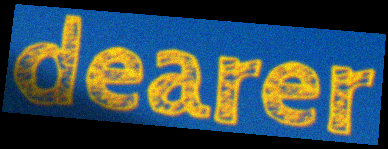
dearer